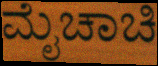
ಮೈಚಾಚಿ